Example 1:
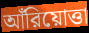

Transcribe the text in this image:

আঁরিয়োত্তা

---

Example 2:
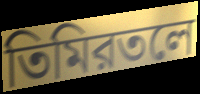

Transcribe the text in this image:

তিমিরতলে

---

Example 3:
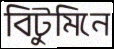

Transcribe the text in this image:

বিটুমিনে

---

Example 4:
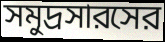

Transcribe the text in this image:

সমুদ্রসারসের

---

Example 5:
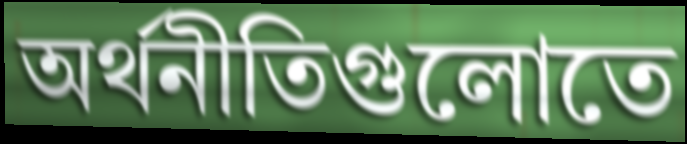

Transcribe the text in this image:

অর্থনীতিগুলোতে